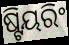
ଷ୍ଟିୟରିଂ